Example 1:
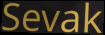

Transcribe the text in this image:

Sevak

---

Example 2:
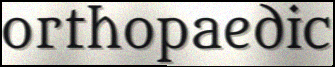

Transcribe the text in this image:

orthopaedic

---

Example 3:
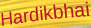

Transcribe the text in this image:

Hardikbhai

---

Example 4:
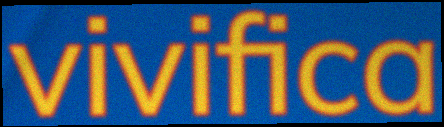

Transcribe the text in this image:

vivifica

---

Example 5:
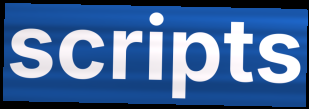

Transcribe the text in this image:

scripts